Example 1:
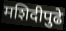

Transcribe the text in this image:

मशिदीपुढे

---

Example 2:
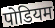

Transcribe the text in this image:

पोडियम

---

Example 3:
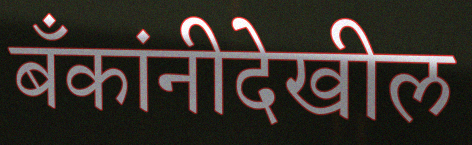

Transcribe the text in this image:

बँकांनीदेखील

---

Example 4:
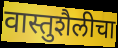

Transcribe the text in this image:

वास्तुशैलीचा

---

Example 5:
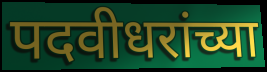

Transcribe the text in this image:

पदवीधरांच्या